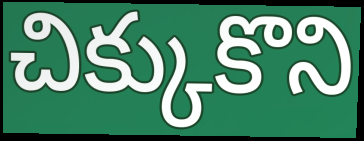
చిక్కుకొని